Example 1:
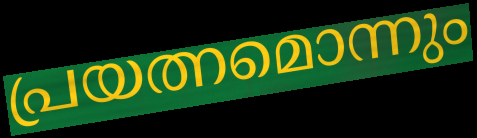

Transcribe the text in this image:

പ്രയത്നമൊന്നും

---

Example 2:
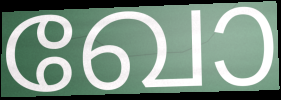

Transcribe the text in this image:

ഖോ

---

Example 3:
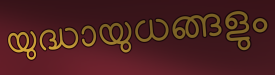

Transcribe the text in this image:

യുദ്ധായുധങ്ങളും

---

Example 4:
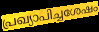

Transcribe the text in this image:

പ്രഖ്യാപിച്ചശേഷം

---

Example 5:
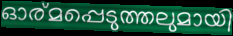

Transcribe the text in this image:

ഓര്മപ്പെടുത്തലുമായി